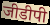
जीडीपी